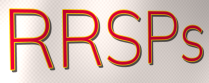
RRSPs